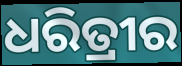
ଧରିତ୍ରୀର